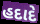
હદાદે